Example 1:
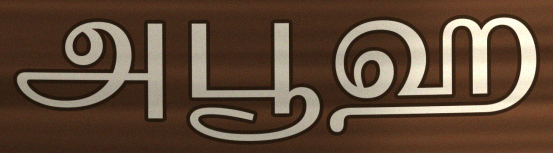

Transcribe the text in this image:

அபூஹ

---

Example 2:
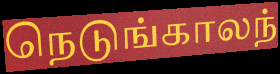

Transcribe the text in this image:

நெடுங்காலந்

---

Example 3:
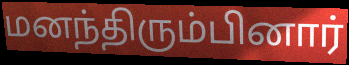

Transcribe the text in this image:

மனந்திரும்பினார்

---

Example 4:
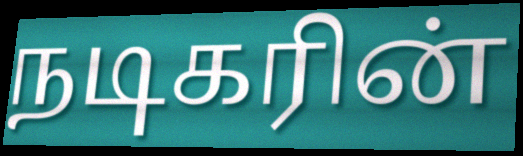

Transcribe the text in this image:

நடிகரின்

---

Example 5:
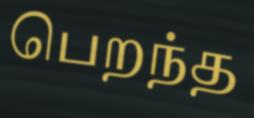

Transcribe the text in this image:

பெறந்த